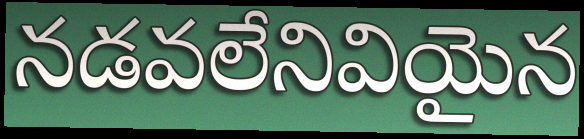
నడవలేనివియైన